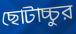
ছোটাচ্চুর